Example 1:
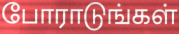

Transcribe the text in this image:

போராடுங்கள்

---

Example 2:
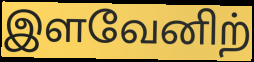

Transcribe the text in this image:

இளவேனிற்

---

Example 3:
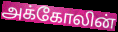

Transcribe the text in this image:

அக்கோலின்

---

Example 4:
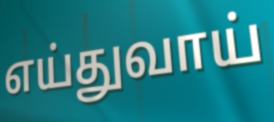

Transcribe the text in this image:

எய்துவாய்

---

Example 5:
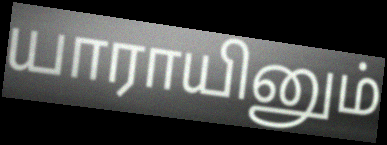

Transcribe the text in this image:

யாராயினும்